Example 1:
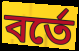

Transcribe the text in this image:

বর্তে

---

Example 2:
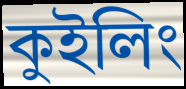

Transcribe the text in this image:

কুইলিং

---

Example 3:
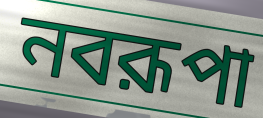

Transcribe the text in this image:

নবরূপা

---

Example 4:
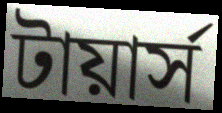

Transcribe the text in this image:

টায়ার্স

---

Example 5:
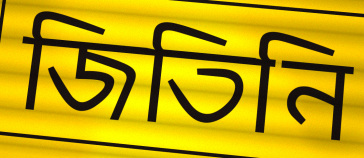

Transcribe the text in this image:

জিতিনি